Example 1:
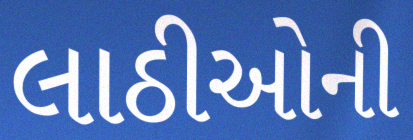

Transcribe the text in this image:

લાઠીઓની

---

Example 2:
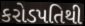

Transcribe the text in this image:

કરોડપતિથી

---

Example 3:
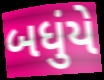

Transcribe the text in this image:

બધુંયે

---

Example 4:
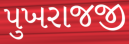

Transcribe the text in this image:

પુખરાજજી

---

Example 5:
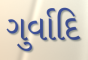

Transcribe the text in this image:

ગુર્વાદિ